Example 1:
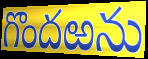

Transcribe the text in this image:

గొందఱను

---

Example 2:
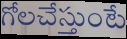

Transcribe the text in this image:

గోలచేస్తుంటే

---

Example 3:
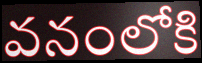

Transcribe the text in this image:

వనంలోకి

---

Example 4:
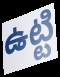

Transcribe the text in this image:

ఉట్టి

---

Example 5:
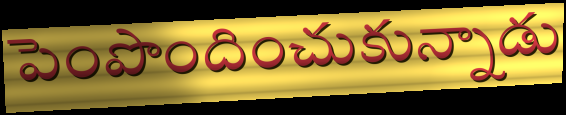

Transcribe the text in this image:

పెంపొందించుకున్నాడు